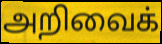
அறிவைக்